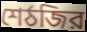
শেঠজির